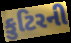
કુટિરની